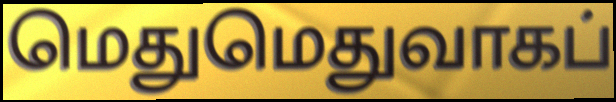
மெதுமெதுவாகப்